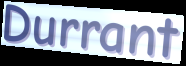
Durrant